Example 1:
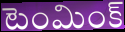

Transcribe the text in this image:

టెంమింక్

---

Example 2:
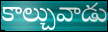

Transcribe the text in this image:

కాల్చువాడు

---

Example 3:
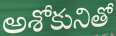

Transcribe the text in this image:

అశోకునితో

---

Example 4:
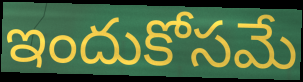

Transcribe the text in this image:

ఇందుకోసమే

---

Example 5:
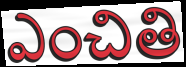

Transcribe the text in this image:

ఎంచితి